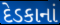
દેડકાનાં